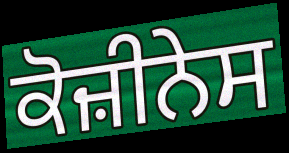
ਕੋਜ਼ੀਨੇਸ